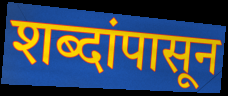
शब्दांपासून